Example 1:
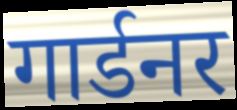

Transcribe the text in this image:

गार्डनर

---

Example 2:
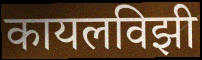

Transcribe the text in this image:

कायलविझी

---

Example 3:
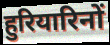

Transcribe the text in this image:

हुरियारिनों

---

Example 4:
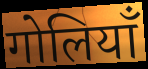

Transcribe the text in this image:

गोलियाँ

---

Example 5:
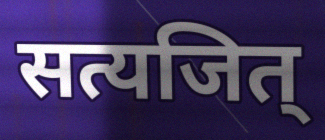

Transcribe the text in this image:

सत्यजित्